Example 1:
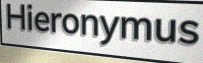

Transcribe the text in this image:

Hieronymus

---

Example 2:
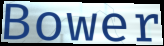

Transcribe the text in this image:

Bower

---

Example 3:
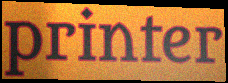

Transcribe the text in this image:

printer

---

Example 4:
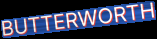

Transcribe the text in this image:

BUTTERWORTH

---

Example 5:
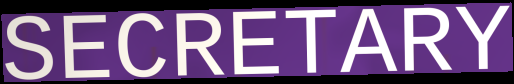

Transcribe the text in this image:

SECRETARY